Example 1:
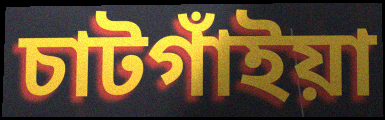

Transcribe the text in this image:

চাটগাঁইয়া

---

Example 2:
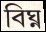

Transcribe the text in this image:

বিঘ্ন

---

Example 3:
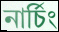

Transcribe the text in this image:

নাৰ্চিং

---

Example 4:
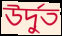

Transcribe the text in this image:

উৰ্দুত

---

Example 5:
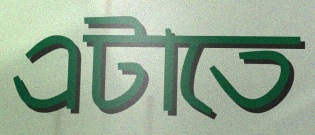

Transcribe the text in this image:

এটাতে